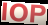
IOP